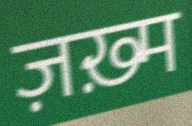
ज़ख़्म